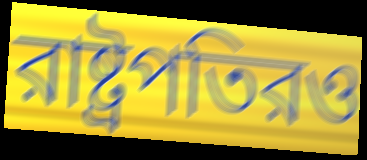
রাষ্ট্রপতিরও